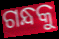
ଗନ୍ଧକୁ